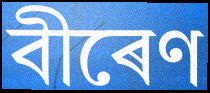
বীৰেণ